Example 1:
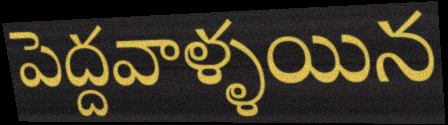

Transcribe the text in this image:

పెద్దవాళ్ళయిన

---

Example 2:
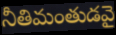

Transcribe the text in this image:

నీతిమంతుడవై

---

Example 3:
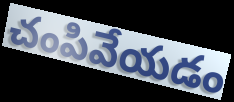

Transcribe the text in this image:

చంపివేయడం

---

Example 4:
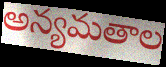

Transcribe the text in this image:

అన్యమతాల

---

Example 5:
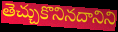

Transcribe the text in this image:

తెచ్చుకొనినదానిని